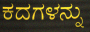
ಕದಗಳನ್ನು